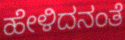
ಹೇಳಿದನಂತೆ